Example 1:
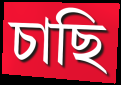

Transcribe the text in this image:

চাছি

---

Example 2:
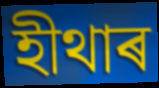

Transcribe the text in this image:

হীথাৰ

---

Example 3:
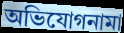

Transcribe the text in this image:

অভিযোগনামা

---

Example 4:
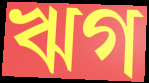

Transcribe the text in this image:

ঋগ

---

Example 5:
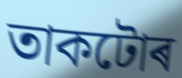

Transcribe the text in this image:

তাকটোৰ